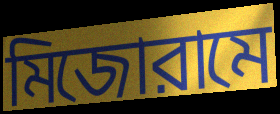
মিজোরামে